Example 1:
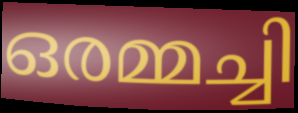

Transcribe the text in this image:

ഒരമ്മച്ചി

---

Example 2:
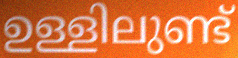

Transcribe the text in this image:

ഉള്ളിലുണ്ട്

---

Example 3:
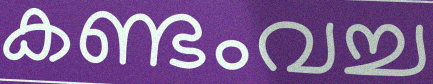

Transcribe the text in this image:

കണ്ടംവച്ച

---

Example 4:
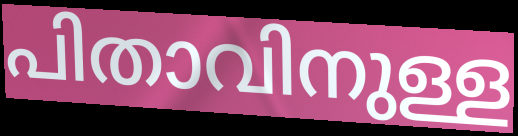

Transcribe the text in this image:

പിതാവിനുള്ള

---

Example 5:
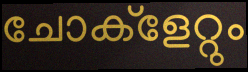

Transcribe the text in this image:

ചോക്ളേറ്റും